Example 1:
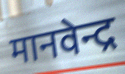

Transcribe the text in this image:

मानवेन्द्र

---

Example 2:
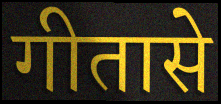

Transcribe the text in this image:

गीतासे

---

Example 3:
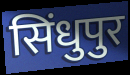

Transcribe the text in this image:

सिंधुपुर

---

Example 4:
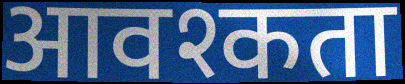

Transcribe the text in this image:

आवश्कता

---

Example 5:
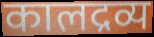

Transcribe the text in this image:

कालद्रव्य